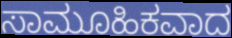
ಸಾಮೂಹಿಕವಾದ